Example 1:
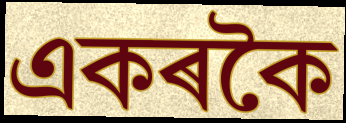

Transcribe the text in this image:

একৰকৈ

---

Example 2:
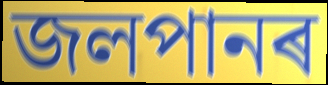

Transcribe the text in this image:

জলপানৰ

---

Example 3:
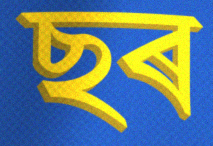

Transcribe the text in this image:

ছৰ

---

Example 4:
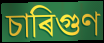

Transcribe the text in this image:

চাৰিগুণ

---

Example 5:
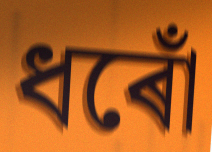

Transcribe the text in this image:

ধৰোঁ